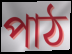
পাঠ